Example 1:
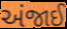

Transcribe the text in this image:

અંજાઈ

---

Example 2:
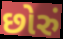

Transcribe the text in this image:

છોરું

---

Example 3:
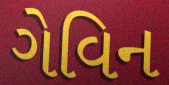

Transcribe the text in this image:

ગેવિન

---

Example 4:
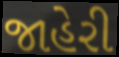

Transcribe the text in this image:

જાહેરી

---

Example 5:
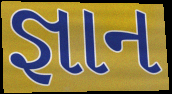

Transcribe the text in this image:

જ્ઞાન